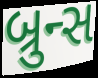
બ્રુન્સ